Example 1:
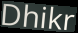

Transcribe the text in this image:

Dhikr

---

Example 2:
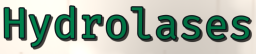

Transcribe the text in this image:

Hydrolases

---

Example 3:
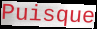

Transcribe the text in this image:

Puisque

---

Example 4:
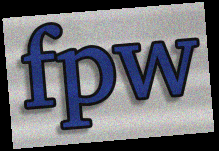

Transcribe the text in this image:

fpw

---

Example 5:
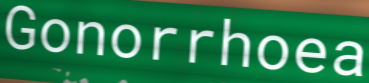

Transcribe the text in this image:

Gonorrhoea